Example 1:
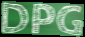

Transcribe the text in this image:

DPG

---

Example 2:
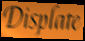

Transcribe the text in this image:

Displate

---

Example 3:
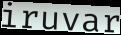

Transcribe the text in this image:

iruvar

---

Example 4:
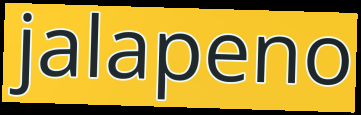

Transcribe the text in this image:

jalapeno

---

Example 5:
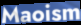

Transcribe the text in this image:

Maoism